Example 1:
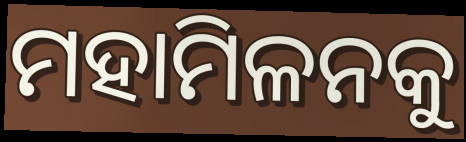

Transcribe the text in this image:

ମହାମିଳନକୁ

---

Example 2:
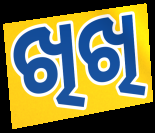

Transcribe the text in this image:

ଖିଖି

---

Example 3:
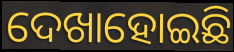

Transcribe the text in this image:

ଦେଖାହୋଇଛି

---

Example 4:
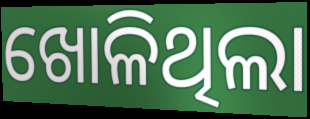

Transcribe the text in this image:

ଖୋଳିଥିଲା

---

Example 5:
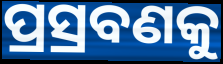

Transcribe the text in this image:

ପ୍ରସ୍ରବଣକୁ